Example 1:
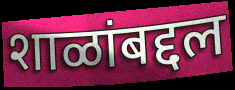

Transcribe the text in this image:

शाळांबद्दल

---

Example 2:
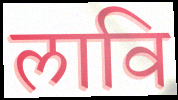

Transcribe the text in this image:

लावि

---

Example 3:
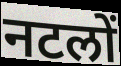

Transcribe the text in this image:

नटलों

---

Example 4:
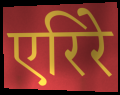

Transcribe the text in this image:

एरिरे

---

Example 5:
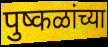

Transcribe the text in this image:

पुष्कळांच्या